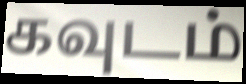
கவுடம்